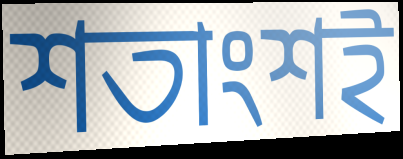
শতাংশই